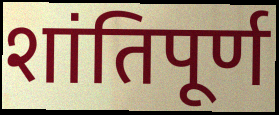
शांतिपूर्ण